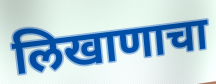
लिखाणाचा